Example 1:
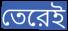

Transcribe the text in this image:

তেরেই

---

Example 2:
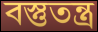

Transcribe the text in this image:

বস্তুতন্ত্র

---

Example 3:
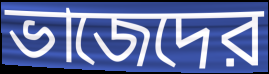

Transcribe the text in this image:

ভাজেদের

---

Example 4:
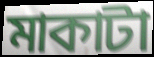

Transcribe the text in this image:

মাকাটা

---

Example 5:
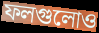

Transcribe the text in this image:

ফলগুলোও